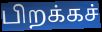
பிறக்கச்